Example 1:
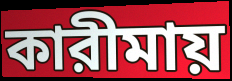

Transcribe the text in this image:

কারীমায়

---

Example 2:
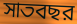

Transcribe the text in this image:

সাতবছর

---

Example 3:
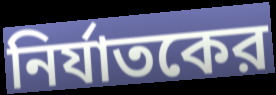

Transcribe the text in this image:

নির্যাতকের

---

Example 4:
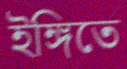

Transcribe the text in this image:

ইঙ্গিতে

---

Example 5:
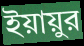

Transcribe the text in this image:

ইয়ায়ুর